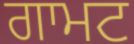
ਗਾਮਟ